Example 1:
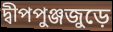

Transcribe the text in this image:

দ্বীপপুঞ্জজুড়ে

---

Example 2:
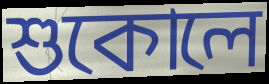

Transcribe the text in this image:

শুকোলে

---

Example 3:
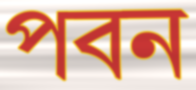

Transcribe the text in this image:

পবন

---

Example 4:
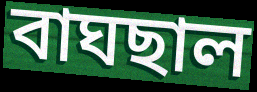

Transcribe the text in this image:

বাঘছাল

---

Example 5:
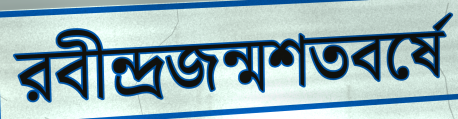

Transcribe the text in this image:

রবীন্দ্রজন্মশতবর্ষে